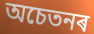
অচেতনৰ